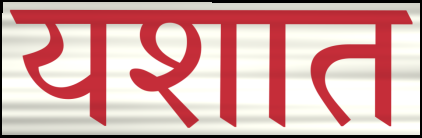
यशात